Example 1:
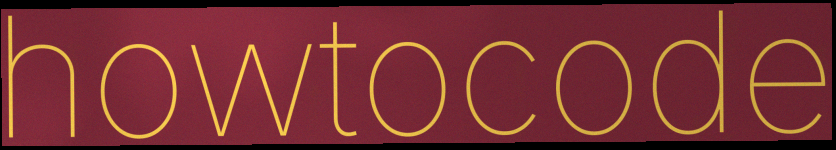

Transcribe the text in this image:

howtocode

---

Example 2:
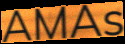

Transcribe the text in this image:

AMAs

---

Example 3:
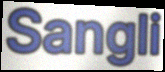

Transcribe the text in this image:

Sangli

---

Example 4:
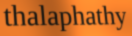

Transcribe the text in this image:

thalaphathy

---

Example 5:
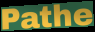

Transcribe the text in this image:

Pathe